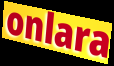
onlara